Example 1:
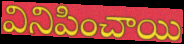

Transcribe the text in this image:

వినిపించాయి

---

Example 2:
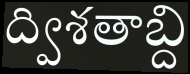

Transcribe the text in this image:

ద్విశతాబ్ది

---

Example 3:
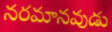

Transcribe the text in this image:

నరమానవుడు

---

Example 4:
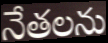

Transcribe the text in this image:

నేతలను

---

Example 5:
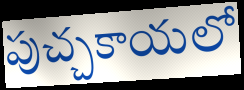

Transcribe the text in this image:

పుచ్చకాయలో